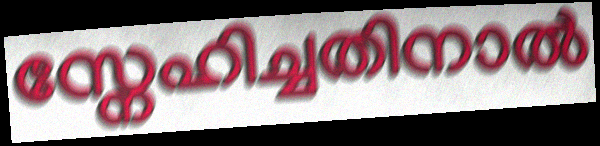
സ്നേഹിച്ചതിനാൽ